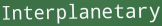
Interplanetary